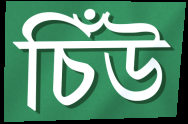
চিঁউ